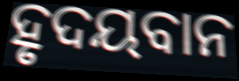
ହୃଦୟବାନ